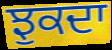
ਝੁਕਦਾ